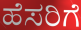
ಹೆಸರಿಗೆ